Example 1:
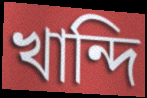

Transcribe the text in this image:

খান্দি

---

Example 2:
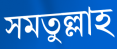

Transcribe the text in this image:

সমতুল্লাহ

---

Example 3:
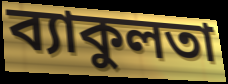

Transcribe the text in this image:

ব্যাকুলতা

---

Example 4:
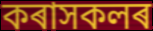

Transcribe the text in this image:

কৰাসকলৰ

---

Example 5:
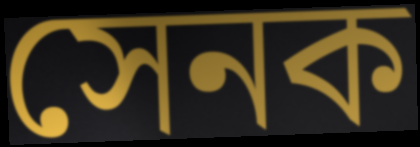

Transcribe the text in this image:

সেনক